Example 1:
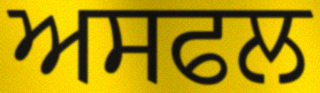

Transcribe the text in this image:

ਅਸਫਲ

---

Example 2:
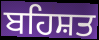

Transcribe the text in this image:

ਬਹਿਸ਼ਤ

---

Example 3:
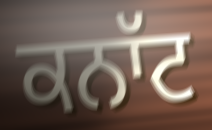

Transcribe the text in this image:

ਕਨਾੱਟ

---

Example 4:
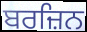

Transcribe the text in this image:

ਬਰਜ਼ਿਨ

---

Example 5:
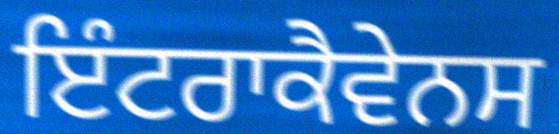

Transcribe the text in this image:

ਇੰਟਰਾਕੈਵੇਨਸ